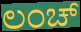
ಲಂಚ್